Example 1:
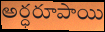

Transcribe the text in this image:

అర్ధరూపాయి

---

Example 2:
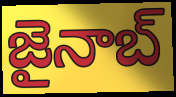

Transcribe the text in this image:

జైనాబ్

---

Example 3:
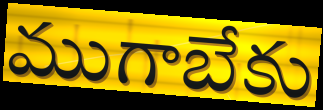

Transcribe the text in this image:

ముగాబేకు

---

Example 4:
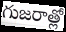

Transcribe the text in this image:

గుజరాత్లో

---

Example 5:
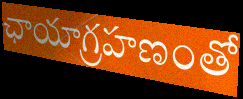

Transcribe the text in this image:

ఛాయాగ్రహణంతో